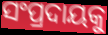
ସଂପ୍ରଦାୟକୁ